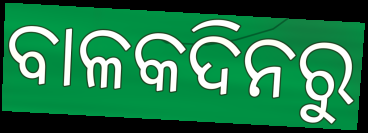
ବାଳକଦିନରୁ